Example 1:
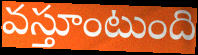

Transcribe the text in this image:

వస్తూంటుంది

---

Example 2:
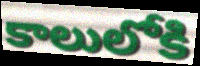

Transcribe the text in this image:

కాలులోకి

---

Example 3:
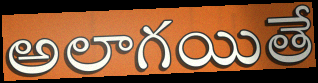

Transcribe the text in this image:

అలాగయితే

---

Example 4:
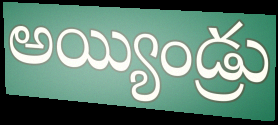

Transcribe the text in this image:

అయ్యిండ్రు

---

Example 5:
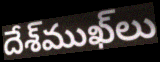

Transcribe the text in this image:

దేశ్‌ముఖ్‌లు